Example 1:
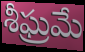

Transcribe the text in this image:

శీఘ్రమే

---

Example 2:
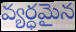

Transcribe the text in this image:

వ్యర్ధమైన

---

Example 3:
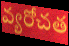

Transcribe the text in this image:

వ్యరోచత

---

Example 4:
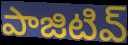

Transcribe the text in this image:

పాజిటివ్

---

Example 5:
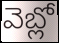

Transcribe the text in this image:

వెబ్లో